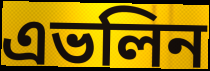
এভলিন